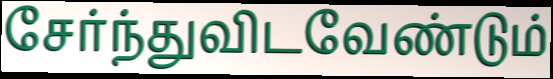
சேர்ந்துவிடவேண்டும்